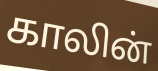
காலின்